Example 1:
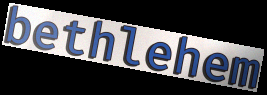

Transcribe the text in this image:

bethlehem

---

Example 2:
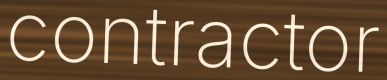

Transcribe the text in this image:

contractor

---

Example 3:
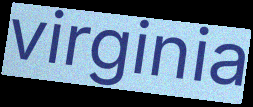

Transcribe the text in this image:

virginia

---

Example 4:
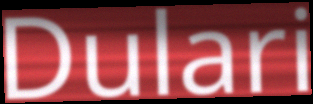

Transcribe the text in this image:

Dulari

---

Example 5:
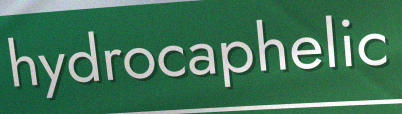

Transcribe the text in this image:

hydrocaphelic